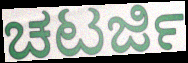
ಚಟರ್ಜಿ